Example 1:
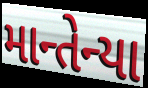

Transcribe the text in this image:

માન્તેન્યા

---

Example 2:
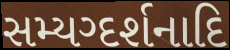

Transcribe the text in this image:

સમ્યગ્દર્શનાદિ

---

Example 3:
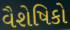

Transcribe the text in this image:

વૈશેષિકો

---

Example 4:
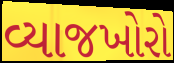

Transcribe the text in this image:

વ્યાજખોરો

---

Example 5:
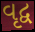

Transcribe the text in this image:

વૃદ્વ